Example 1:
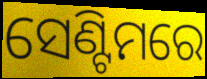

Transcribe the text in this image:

ସେଣ୍ଟିମରେ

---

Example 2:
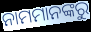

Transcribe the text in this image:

ନାମମାନଙ୍କରୁ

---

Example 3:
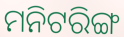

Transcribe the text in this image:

ମନିଟରିଙ୍ଗ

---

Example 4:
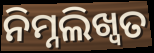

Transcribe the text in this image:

ନିମ୍ନଲିଖ୍ବତ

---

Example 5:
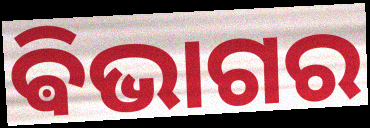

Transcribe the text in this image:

ଵିଭାଗର